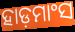
ହାଡ଼ମାଂସ